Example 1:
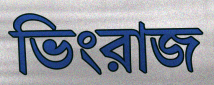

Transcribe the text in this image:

ভিংরাজ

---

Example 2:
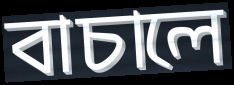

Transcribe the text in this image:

বাচালে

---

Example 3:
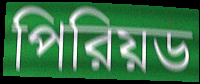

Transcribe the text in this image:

পিরিয়ড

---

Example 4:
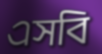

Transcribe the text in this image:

এসবি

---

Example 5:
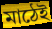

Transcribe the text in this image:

মাঠেই